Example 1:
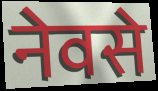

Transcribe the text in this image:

नेवसे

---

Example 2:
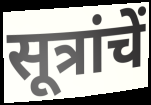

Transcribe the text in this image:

सूत्रांचें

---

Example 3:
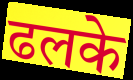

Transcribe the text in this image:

ढलके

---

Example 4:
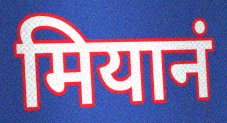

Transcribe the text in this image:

मियानं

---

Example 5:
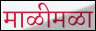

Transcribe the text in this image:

माळीमळा